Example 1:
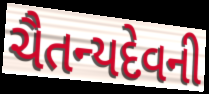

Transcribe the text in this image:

ચૈતન્યદેવની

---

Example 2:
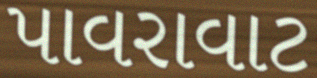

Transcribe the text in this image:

પાવરાવાટ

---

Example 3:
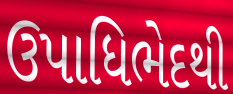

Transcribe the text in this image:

ઉપાધિભેદથી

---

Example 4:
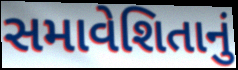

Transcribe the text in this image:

સમાવેશિતાનું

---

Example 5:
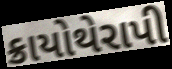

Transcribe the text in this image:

ક્રાયોથેરાપી